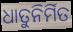
ଧାତୁନିର୍ମିତ